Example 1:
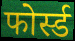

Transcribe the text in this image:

फोर्स्ड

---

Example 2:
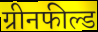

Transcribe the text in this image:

ग्रीनफील्ड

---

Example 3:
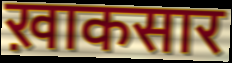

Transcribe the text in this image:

ख़ाकसार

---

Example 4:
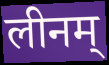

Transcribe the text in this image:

लीनम्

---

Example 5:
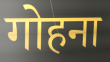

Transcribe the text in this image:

गोहना